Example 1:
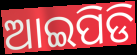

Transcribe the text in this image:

ଆଇପିଡି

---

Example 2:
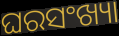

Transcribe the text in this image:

ଘରସଂଖ୍ୟା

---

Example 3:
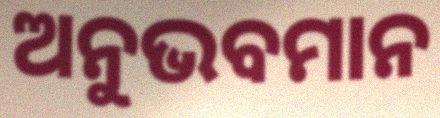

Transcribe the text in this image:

ଅନୁଭବମାନ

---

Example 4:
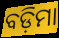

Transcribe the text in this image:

ବଡ଼ିମା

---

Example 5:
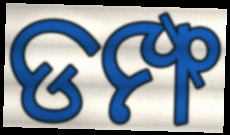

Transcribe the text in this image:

ଡମ୍ଫ